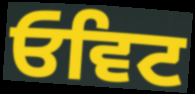
ਓਵਿਟ